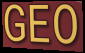
GEO